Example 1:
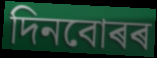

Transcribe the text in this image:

দিনবোৰৰ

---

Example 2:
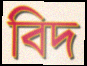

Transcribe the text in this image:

বিদ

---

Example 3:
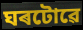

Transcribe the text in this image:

ঘৰটোৱে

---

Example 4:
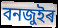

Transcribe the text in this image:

বনজুইৰ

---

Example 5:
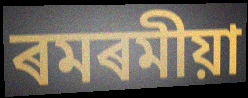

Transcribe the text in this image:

ৰমৰমীয়া